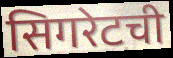
सिगरेटची